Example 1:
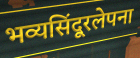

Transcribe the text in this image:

भव्यसिंदूरलेपना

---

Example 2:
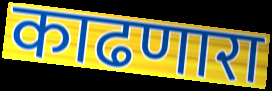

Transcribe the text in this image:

काढणारा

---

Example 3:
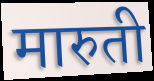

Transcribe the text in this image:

मारुती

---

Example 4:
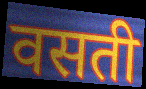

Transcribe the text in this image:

वसती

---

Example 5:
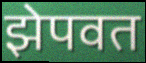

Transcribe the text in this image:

झेपवत